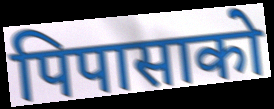
पिपासाको